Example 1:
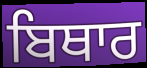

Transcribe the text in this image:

ਬਿਥਾਰ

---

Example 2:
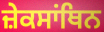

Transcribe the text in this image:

ਜ਼ੇਕਸਾਂਥਿਨ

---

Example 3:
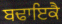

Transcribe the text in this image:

ਬਢਾਇਕੈ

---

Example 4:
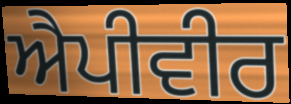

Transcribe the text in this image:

ਐਪੀਵੀਰ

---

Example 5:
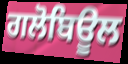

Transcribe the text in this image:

ਗਲੋਬਿਊਲ